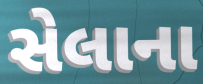
સેલાના